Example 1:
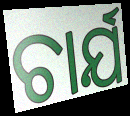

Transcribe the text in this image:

ଚାର୍ଯ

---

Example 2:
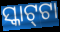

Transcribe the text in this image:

ସ୍କାଟ୍‌ଟା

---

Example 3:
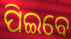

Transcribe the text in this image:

ପିଇବେ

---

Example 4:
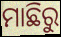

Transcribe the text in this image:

ମାଛିରୁ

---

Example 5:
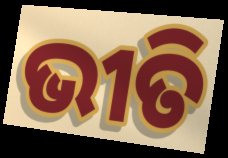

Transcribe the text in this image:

ଭୀତି